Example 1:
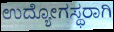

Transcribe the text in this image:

ಉದ್ಯೋಗಸ್ಥರಾಗಿ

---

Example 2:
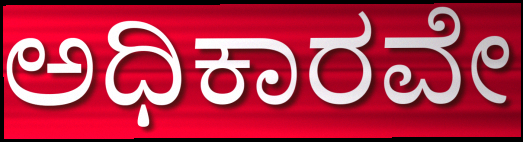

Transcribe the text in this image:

ಅಧಿಕಾರವೇ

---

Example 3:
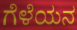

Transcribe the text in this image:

ಗೆಳೆಯನ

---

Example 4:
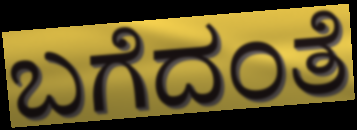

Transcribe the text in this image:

ಬಗೆದಂತೆ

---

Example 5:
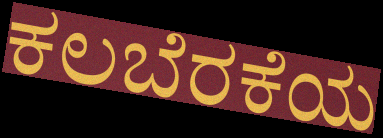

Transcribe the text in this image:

ಕಲಬೆರಕೆಯ